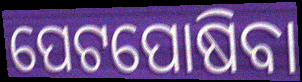
ପେଟପୋଷିବା